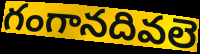
గంగానదివలె